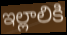
ఇల్లాలికి